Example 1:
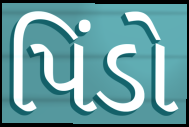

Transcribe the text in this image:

પિંડો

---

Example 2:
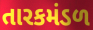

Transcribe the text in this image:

તારકમંડળ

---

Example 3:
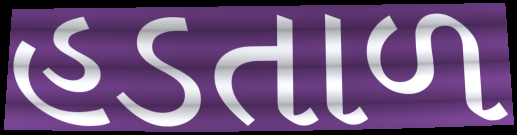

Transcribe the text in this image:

હડતાળ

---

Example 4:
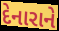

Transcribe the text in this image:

દેનારાને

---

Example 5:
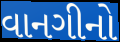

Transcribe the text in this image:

વાનગીનો